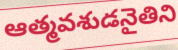
ఆత్మవశుడనైతిని